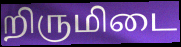
றிருமிடை